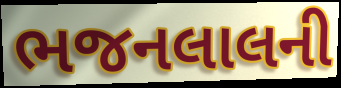
ભજનલાલની